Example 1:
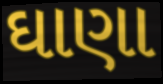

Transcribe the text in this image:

ઘાણા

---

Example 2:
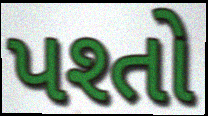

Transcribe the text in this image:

પશ્તો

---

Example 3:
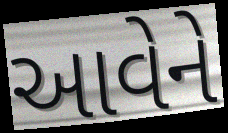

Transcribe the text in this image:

આવેને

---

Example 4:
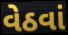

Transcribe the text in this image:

વેઠવાં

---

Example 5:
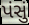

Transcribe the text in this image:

પંસું